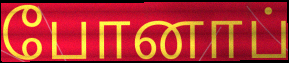
போனாப்